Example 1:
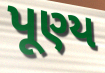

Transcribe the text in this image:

પૂણ્ય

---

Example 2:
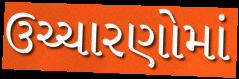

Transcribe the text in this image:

ઉચ્ચારણોમાં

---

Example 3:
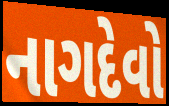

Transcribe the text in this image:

નાગદેવો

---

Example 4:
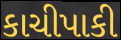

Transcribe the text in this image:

કાચીપાકી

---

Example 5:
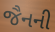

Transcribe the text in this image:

જૈનની